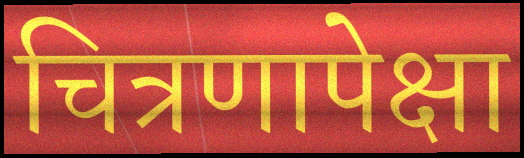
चित्रणापेक्षा